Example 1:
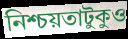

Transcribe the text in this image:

নিশ্চয়তাটুকুও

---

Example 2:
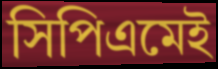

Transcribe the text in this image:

সিপিএমেই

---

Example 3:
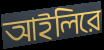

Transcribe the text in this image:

আইলিরে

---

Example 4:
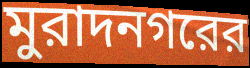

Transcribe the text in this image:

মুরাদনগরের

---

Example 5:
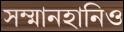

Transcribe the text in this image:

সম্মানহানিও